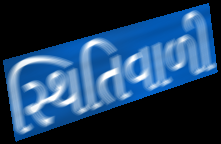
સ્થિતિવાળી